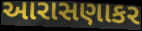
આરાસણાકર